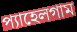
প্যাহেলগাম